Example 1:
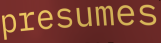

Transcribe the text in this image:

presumes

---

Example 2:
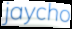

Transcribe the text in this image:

jaycho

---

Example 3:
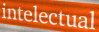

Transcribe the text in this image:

intelectual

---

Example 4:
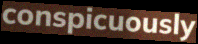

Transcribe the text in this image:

conspicuously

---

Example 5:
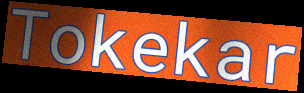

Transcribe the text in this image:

Tokekar